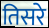
तिसरे